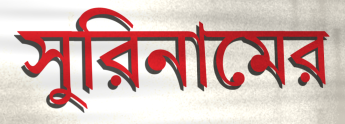
সুরিনামের